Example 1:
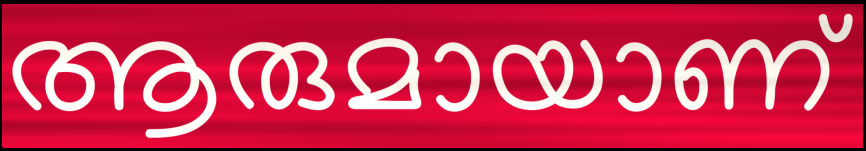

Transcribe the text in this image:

ആരുമായാണ്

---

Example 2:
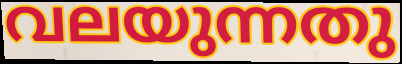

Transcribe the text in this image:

വലയുന്നതു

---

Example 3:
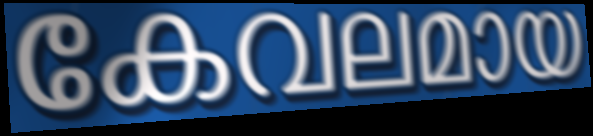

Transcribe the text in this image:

കേവലമായ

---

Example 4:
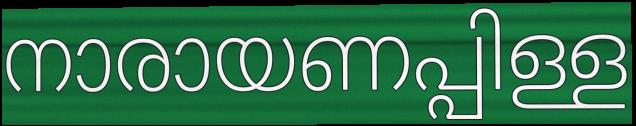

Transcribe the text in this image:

നാരായണപ്പിള്ള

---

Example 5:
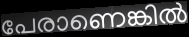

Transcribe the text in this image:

പേരാണെങ്കിൽ